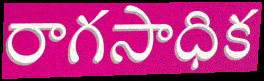
రాగసాధిక